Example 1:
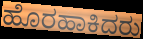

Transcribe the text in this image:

ಹೊರಹಾಕಿದರು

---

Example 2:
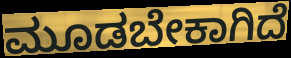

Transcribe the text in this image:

ಮೂಡಬೇಕಾಗಿದೆ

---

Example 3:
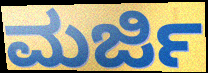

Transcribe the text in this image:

ಮರ್ಜಿ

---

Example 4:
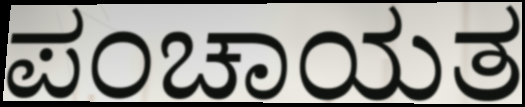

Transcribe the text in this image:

ಪಂಚಾಯತ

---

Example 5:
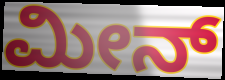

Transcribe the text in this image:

ಮೀನ್